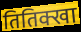
तितिक्खा